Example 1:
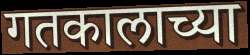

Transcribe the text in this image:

गतकालाच्या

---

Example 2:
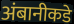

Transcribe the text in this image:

अंबानीकडे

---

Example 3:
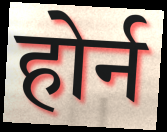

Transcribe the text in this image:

होर्न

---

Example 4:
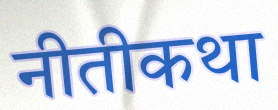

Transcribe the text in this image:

नीतीकथा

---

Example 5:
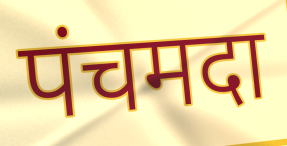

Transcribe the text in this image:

पंचमदा